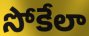
సోకేలా